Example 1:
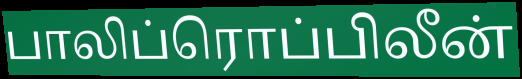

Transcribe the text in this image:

பாலிப்ரொப்பிலீன்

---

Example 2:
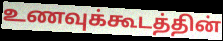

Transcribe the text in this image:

உணவுக்கூடத்தின்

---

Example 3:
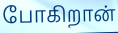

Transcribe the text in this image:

போகிறான்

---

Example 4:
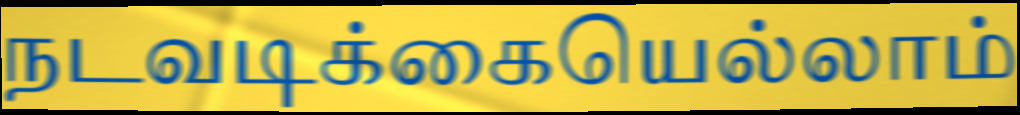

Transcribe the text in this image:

நடவடிக்கையெல்லாம்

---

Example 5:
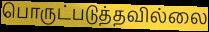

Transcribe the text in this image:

பொருட்படுத்தவில்லை